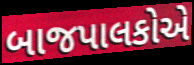
બાજપાલકોએ